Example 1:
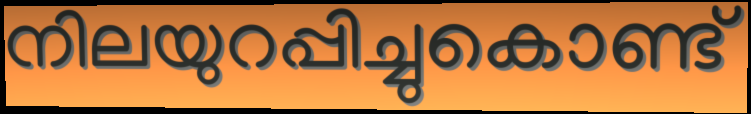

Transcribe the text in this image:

നിലയുറപ്പിച്ചുകൊണ്ട്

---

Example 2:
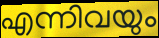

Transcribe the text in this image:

എന്നിവയും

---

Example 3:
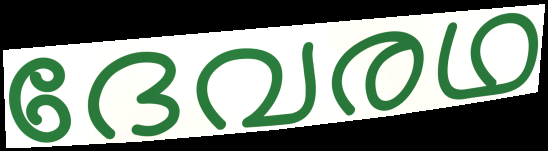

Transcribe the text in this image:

ദേവരഥ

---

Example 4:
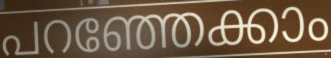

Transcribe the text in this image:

പറഞ്ഞേക്കാം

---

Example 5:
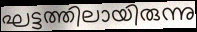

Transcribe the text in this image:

ഘട്ടത്തിലായിരുന്നു